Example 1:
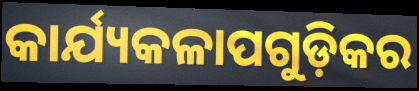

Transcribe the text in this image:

କାର୍ଯ୍ୟକଳାପଗୁଡ଼ିକର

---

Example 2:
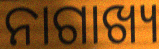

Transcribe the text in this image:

ନାଗାଖ୍ୟ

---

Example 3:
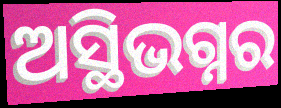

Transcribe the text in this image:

ଅସ୍ଥିଭଗ୍ନର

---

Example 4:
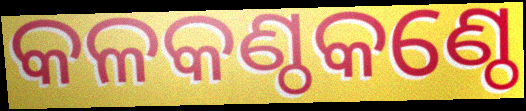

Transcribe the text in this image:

କଳକଣ୍ଠକଣ୍ଠେ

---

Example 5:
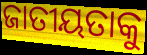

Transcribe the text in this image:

ଜାତୀୟତାକୁ